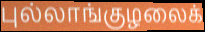
புல்லாங்குழலைக்